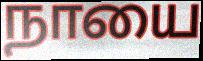
நாயை